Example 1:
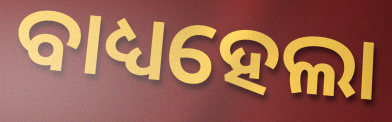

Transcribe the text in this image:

ବାଧ୍ୟହେଲା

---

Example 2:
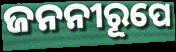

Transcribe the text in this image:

ଜନନୀରୂପେ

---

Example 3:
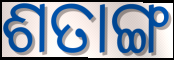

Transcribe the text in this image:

ଶତାଙ୍ଗ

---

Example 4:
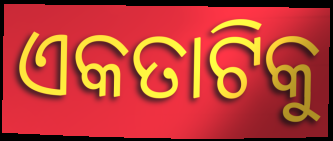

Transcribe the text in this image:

ଏକତାଟିକୁ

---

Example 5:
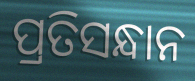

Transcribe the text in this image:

ପ୍ରତିସନ୍ଧାନ